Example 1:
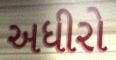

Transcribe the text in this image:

અધીરો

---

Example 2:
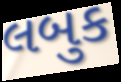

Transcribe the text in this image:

લબુક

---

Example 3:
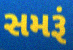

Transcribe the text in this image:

સમરૂં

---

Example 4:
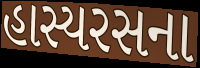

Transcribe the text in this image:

હાસ્યરસના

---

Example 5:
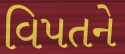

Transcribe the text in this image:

વિપતને